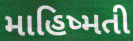
માહિષ્મતી